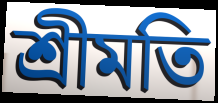
শ্রীমতি